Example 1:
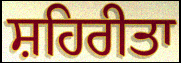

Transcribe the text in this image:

ਸ਼ਹਿਰੀਤਾ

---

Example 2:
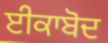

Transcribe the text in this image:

ਈਕਾਬੋਦ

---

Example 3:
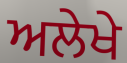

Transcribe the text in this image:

ਅਲੇਖੇ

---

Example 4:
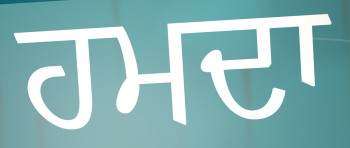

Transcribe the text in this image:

ਹਮਦਾ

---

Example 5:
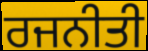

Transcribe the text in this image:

ਰਜਨੀਤੀ